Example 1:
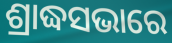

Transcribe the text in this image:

ଶ୍ରାଦ୍ଧସଭାରେ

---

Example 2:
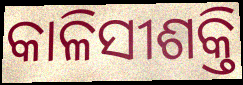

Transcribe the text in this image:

କାଳିସୀଶକ୍ତି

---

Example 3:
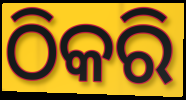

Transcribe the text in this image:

ଠିକରି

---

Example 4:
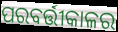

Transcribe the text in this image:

ପରବର୍ତ୍ତୀକାଳର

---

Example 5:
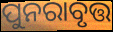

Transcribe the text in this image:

ପୁନରାବୃତ୍ତ